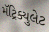
મૅટ્રિક્યુલેટ